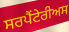
ਸਰਪੈਂਟੇਰੀਅਸ